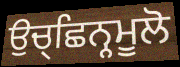
ਉਚ੍ਛਿਨ੍ਨਮੂਲੋ